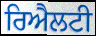
ਰਿਐਲਟੀ